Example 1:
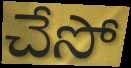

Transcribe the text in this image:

చేసో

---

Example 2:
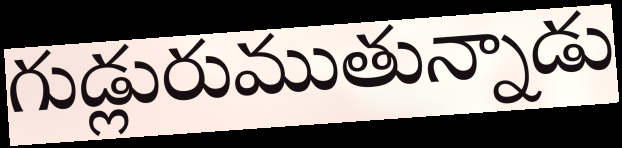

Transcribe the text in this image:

గుడ్లురుముతున్నాడు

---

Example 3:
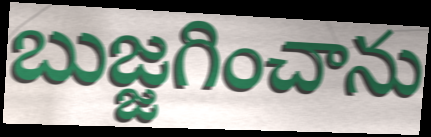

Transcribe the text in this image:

బుజ్జగించాను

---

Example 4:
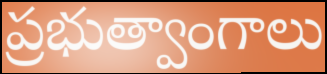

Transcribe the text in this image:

ప్రభుత్వాంగాలు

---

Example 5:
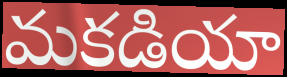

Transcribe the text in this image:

మకడియా